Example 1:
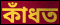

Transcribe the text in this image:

কাঁধত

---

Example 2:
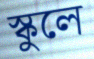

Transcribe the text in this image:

স্কুলে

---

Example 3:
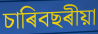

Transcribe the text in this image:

চাৰিবছৰীয়া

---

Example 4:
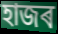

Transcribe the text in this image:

হাজৰ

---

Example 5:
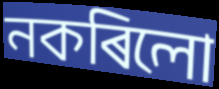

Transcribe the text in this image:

নকৰিলো